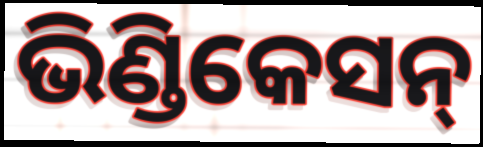
ଭିଣ୍ଡିକେସନ୍